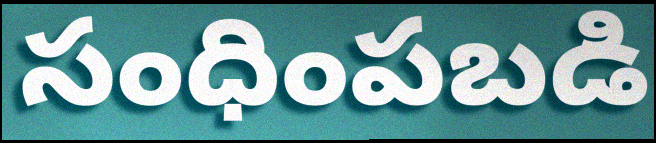
సంధింపబడి